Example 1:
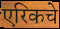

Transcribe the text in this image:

एरिकचे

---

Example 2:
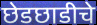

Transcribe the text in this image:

छेडछाडीचे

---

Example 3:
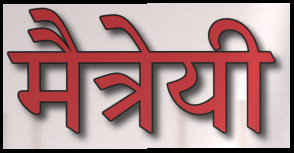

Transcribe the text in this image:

मैत्रेयी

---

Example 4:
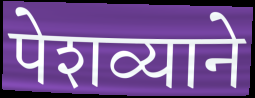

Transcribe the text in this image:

पेशव्याने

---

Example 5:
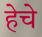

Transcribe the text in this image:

हेचे